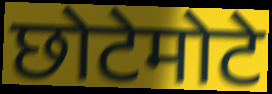
छोटेमोटे